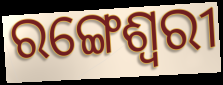
ରଙ୍ଗେଶ୍ୱରୀ